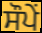
ਸੌਪੇਂ